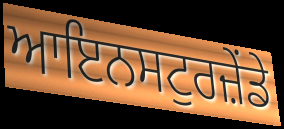
ਆਇਨਸਟੁਰਜ਼ੇਂਡੇ